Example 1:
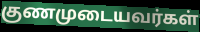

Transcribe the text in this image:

குணமுடையவர்கள்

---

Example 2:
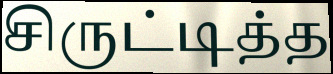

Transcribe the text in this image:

சிருட்டித்த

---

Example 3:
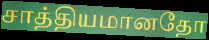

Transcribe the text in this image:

சாத்தியமானதோ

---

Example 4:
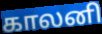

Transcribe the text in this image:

காலனி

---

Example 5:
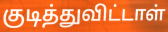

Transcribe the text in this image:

குடித்துவிட்டாள்